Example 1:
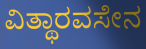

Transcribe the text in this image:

ವಿತ್ಥಾರವಸೇನ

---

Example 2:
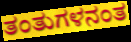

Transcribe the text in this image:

ತಂತುಗಳನಂತ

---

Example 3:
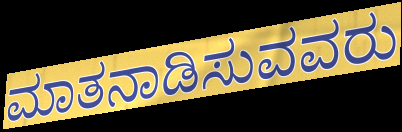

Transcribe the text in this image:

ಮಾತನಾಡಿಸುವವರು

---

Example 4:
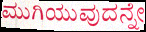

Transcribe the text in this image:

ಮುಗಿಯುವುದನ್ನೇ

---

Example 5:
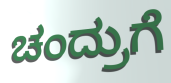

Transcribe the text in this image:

ಚಂದ್ರುಗೆ